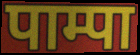
पाम्पा